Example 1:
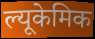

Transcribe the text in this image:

ल्यूकेमिक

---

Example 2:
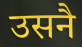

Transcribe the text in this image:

उसनै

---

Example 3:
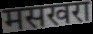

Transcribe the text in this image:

मसखरा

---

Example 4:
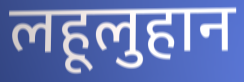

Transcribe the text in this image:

लहूलुहान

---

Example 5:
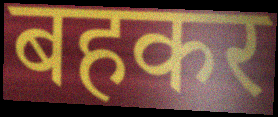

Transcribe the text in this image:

बहकर